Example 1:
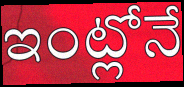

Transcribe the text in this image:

ఇంట్లోనే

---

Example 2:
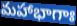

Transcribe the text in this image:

మహాభాగాః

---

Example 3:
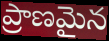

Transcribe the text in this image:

ప్రాణమైన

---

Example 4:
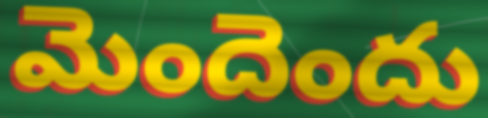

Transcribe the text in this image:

మెందెందు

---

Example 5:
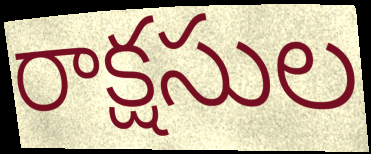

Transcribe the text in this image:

రాక్షసుల